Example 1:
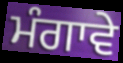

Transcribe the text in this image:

ਮੰਗਾਵੇ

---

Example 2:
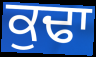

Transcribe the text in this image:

ਕੁਢਾ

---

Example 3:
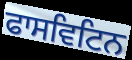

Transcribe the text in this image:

ਫਾਸਵਿਟਿਨ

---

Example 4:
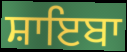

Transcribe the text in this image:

ਸ਼ਾਇਬਾ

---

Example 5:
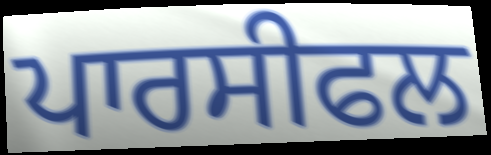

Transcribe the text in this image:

ਪਾਰਸੀਫਲ